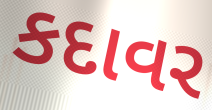
કદાવર